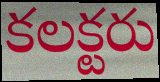
కలక్టరు